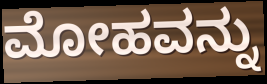
ಮೋಹವನ್ನು